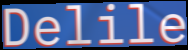
Delile